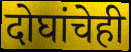
दोघांचेही